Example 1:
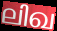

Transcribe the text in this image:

ലിഖ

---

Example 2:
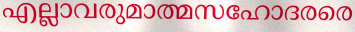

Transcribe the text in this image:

എല്ലാവരുമാത്മസഹോദരരെ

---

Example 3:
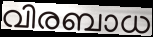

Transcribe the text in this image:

വിരബാധ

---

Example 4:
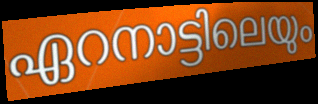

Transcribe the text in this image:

ഏറനാട്ടിലെയും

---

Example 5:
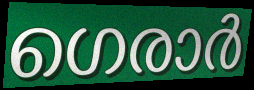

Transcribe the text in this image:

ഗെരാർ